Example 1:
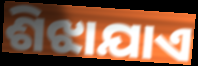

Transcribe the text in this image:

ଶିଝାଯାଏ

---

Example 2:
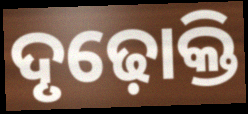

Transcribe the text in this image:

ଦୃଢ଼ୋକ୍ତି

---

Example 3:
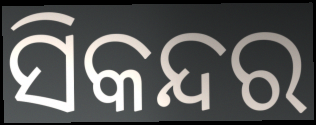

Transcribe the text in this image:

ସିକନ୍ଦର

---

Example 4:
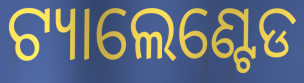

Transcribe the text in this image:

ଟ୍ୟାଲେଣ୍ଟେଡ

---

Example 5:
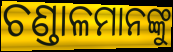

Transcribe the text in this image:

ଚଣ୍ଡାଳମାନଙ୍କୁ